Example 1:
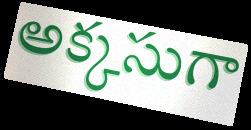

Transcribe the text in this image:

అక్కసుగా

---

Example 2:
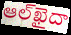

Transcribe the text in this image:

ఆల్‌ఖైదా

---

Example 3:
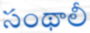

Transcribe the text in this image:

సంథాలీ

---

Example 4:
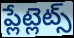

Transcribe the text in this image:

ప్లేట్లెట్స్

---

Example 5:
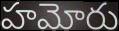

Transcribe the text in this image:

హమోరు